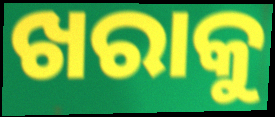
ଖରାକୁ